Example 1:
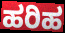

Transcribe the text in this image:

ಹರಿಹ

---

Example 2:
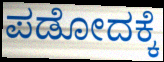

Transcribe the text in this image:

ಪಡೋದಕ್ಕೆ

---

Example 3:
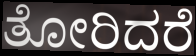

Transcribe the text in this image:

ತೋರಿದರೆ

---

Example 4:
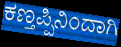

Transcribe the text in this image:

ಕಣ್ತಪ್ಪಿನಿಂದಾಗಿ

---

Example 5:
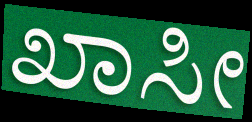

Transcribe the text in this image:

ಖಾಸೀ